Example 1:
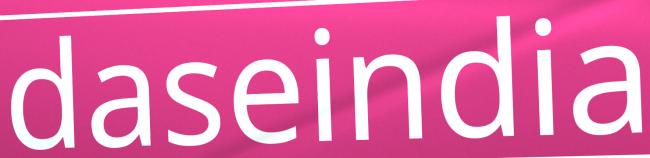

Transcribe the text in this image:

daseindia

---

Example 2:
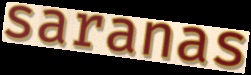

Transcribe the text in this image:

saranas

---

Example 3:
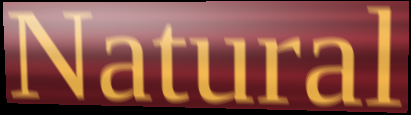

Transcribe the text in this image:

Natural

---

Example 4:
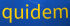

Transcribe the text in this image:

quidem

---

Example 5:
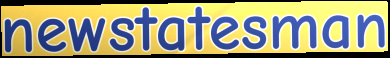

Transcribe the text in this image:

newstatesman